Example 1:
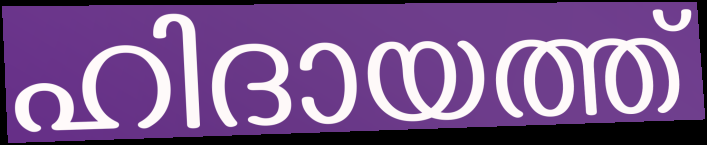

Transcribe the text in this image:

ഹിദായത്ത്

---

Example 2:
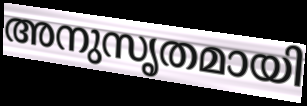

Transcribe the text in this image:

അനുസൃതമായി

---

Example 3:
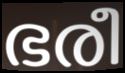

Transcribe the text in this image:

ഭരീ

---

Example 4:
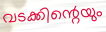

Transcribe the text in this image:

വടക്കിന്റെയും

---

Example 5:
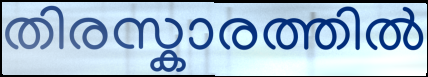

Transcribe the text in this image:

തിരസ്കാരത്തിൽ